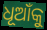
ଧୂଆଁକୁ